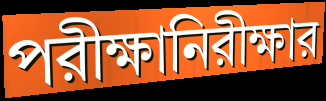
পরীক্ষানিরীক্ষার